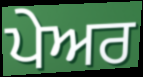
ਪੇਅਰ